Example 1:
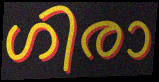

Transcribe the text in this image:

ഗിരാ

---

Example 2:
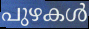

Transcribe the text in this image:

പുഴകൾ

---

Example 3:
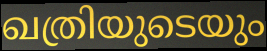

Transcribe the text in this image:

ഖത്രിയുടെയും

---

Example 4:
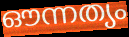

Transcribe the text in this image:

ഔന്നത്യം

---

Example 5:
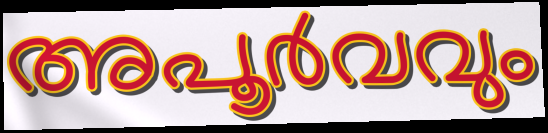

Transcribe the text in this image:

അപൂർവവും